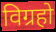
विग्रहो